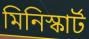
মিনিস্কার্ট